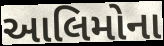
આલિમોના